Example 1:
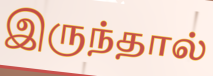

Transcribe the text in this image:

இருந்தால்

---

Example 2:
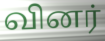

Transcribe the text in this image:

வினர்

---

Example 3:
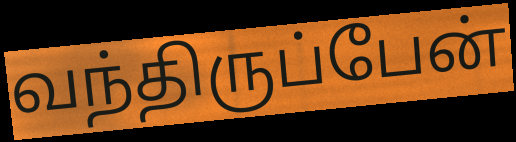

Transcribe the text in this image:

வந்திருப்பேன்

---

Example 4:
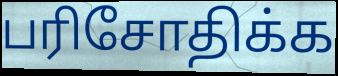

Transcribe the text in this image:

பரிசோதிக்க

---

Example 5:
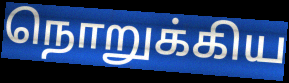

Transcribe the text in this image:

நொறுக்கிய